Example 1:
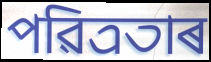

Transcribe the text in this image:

পৱিত্ৰতাৰ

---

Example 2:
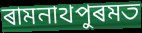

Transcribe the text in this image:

ৰামনাথপুৰমত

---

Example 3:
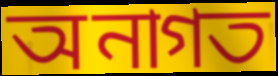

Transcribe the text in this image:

অনাগত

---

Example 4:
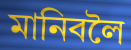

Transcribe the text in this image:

মানিবলৈ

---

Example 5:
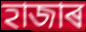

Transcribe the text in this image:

হাজাৰ